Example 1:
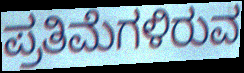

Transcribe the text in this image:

ಪ್ರತಿಮೆಗಳಿರುವ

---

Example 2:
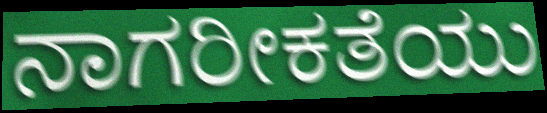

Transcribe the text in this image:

ನಾಗರೀಕತೆಯು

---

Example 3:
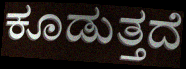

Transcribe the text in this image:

ಕೂಡುತ್ತದೆ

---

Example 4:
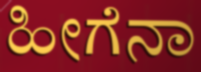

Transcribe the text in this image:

ಹೀಗೆನಾ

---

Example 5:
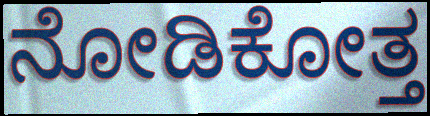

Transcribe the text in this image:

ನೋಡಿಕೋತ್ತ